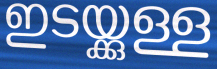
ഇടയ്ക്കുള്ള